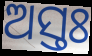
ଅସ୍ତଃ